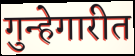
गुन्हेगारीत